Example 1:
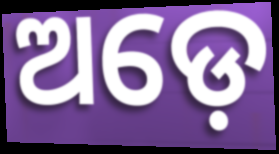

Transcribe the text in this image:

ଅଡ଼େ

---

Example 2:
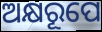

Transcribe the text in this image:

ଅକ୍ଷରୂପେ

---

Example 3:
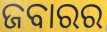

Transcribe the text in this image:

ଜବାରର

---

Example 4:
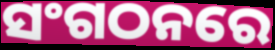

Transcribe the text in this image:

ସଂଗଠନରେ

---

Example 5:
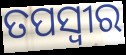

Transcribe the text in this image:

ତପସ୍ଵୀର